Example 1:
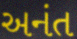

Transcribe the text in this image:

અનંત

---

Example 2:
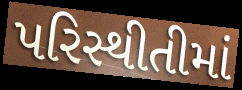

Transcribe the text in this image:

પરિસ્થીતીમાં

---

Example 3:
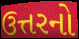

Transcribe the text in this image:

ઉત્તરનો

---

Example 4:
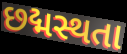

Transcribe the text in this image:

છદ્મસ્થતા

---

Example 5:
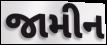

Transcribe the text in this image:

જામીન